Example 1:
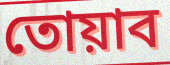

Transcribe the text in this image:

তোয়াব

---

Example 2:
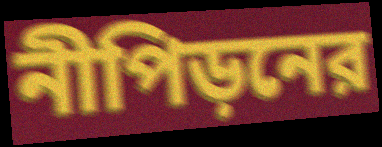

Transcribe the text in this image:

নীপিড়নের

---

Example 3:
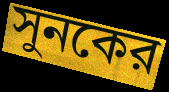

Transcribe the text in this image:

সুনকের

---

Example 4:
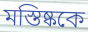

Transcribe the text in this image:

মস্তিষ্ককে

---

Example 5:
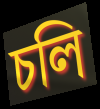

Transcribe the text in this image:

চলি